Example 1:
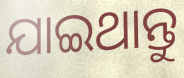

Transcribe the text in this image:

ଯାଇଥାନ୍ତୁ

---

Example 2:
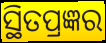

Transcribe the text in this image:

ସ୍ଥିତପ୍ରଜ୍ଞର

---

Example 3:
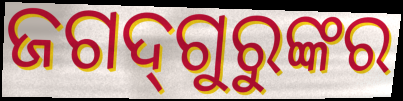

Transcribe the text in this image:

ଜଗଦ୍‌ଗୁରୁଙ୍କର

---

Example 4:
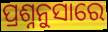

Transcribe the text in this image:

ପ୍ରଶ୍ନନୁସାରେ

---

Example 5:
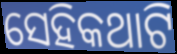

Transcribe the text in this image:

ସେହିକଥାଟି